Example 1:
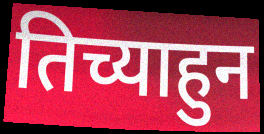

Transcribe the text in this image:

तिच्याहुन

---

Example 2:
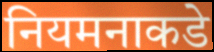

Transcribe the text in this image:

नियमनाकडे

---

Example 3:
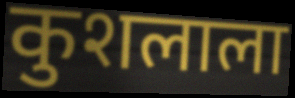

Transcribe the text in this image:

कुशलाला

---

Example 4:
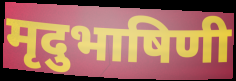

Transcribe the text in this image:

मृदुभाषिणी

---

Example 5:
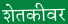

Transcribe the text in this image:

शेतकीवर